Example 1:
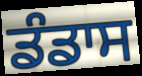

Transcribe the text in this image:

ਡੰਡਾਸ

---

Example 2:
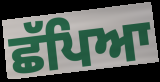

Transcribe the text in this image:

ਛੱਪਿਆ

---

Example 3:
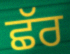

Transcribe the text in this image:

ਛੱਰ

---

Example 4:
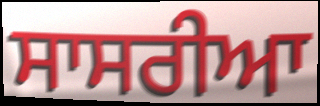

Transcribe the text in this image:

ਸਾਸਰੀਆ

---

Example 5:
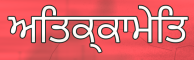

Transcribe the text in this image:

ਅਤਿਕ੍ਕਾਮੇਤਿ